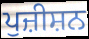
ਪੁਜ਼ੀਸ਼ਨ